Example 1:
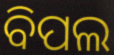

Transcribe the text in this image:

ବିପଲ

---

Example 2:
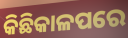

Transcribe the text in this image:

କିଛିକାଳପରେ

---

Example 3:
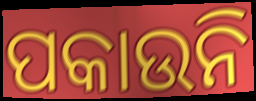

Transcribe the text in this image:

ପକାଉନି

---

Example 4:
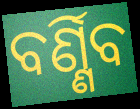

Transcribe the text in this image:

ବର୍ଣ୍ଣିବ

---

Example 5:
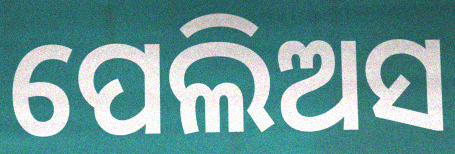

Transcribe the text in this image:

ପେଲିଅସ